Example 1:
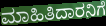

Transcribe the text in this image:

ಮಾಹಿತಿದಾರನಿಗೆ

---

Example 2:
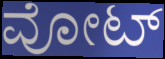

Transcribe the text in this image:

ವೋಟ್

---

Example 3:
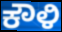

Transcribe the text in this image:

ಕೌಳಿ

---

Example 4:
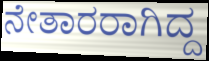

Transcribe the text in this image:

ನೇತಾರರಾಗಿದ್ದ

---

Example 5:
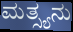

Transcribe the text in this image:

ಮತ್ಸ್ಯನು